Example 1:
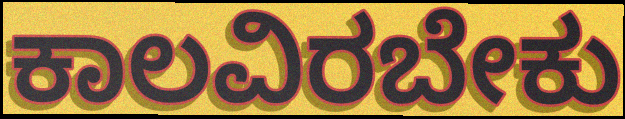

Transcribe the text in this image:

ಕಾಲವಿರಬೇಕು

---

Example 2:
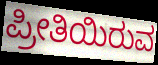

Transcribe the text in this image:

ಪ್ರೀತಿಯಿರುವ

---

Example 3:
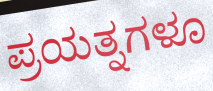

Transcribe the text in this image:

ಪ್ರಯತ್ನಗಳೂ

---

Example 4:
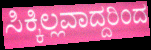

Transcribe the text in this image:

ಸಿಕ್ಕಿಲ್ಲವಾದ್ದರಿಂದ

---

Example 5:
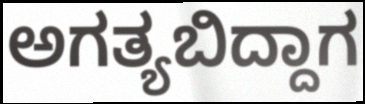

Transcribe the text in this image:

ಅಗತ್ಯಬಿದ್ದಾಗ